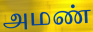
அமண்